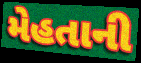
મેહતાની